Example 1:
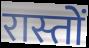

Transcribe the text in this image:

रास्‍तों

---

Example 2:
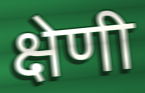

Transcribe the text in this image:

क्षेणी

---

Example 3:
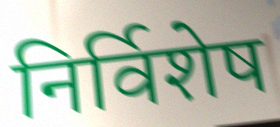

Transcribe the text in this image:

निर्विशेष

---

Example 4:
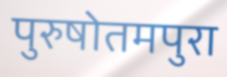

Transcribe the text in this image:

पुरुषोतमपुरा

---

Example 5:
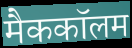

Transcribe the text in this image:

मैककॉलम